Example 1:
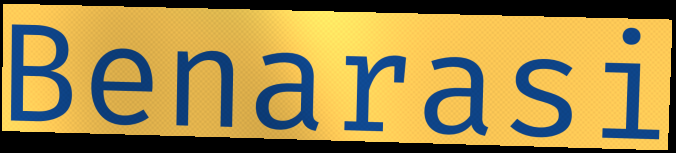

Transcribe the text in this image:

Benarasi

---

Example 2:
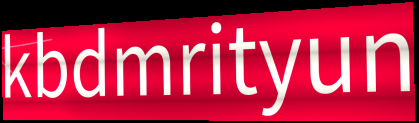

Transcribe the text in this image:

kbdmrityun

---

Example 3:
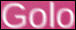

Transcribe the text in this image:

Golo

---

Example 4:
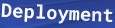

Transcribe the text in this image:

Deployment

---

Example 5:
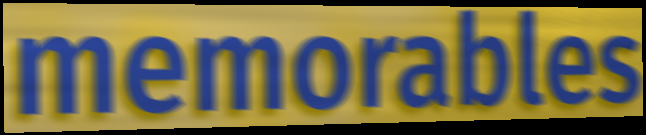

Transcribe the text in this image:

memorables